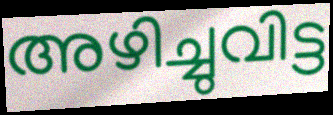
അഴിച്ചുവിട്ട